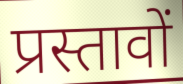
प्रस्तावों